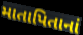
માતાપિતાનાં